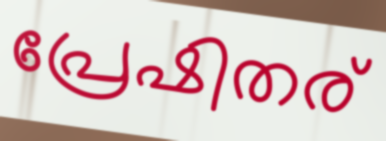
പ്രേഷിതര്